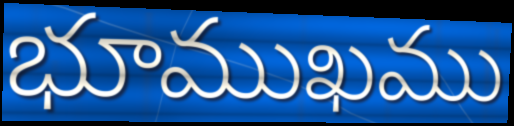
భూముఖము